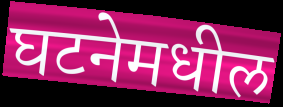
घटनेमधील